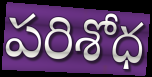
పరిశోధ